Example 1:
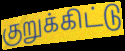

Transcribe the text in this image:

குறுக்கிட்டு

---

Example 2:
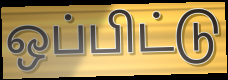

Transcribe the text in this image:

ஒப்பிட்டு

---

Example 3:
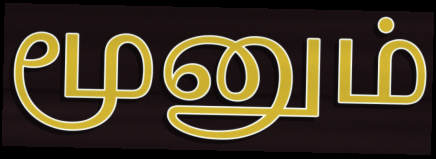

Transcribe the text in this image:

மூனும்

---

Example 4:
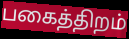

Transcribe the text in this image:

பகைத்திறம்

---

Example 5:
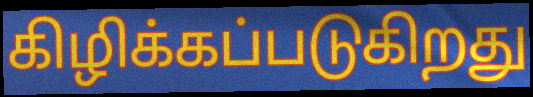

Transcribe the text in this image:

கிழிக்கப்படுகிறது